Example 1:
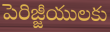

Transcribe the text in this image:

పెరిజ్జీయులకు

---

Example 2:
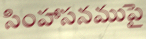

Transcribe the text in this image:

సింహాసనముపై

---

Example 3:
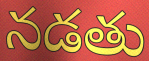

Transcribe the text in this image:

నడతు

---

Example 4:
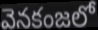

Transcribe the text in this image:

వెనకంజలో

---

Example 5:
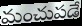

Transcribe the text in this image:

మంచుపడే